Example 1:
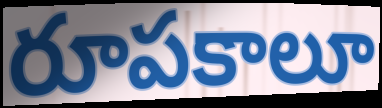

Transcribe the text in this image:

రూపకాలూ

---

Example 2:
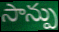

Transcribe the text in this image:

సాన్పు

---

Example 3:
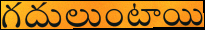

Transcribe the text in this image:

గదులుంటాయి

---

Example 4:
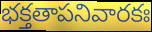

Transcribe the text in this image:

భక్తతాపనివారకః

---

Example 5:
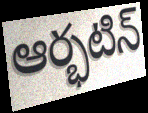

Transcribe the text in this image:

ఆర్భటిన్